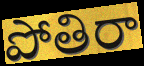
పోతిరా